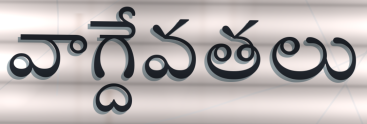
వాగ్దేవతలు